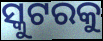
ସ୍କୁଟରକୁ